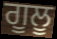
ਗੂਲੂ